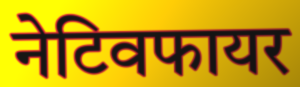
नेटिवफायर